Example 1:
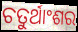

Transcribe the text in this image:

ଚତୁର୍ଥାଂଶର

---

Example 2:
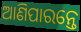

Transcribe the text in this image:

ଆଣିପାରନ୍ତେ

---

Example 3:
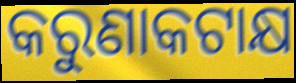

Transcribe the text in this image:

କରୁଣାକଟାକ୍ଷ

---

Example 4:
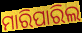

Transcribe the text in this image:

ମାରିପାରିଲ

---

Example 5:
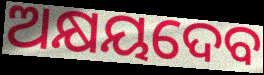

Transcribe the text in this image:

ଅକ୍ଷୟଦେବ